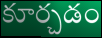
కూర్చడం